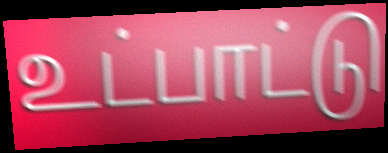
உட்பாட்டு